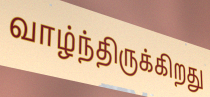
வாழ்ந்திருக்கிறது